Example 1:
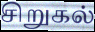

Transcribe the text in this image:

சிறுகல்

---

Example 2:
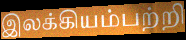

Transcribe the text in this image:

இலக்கியம்பற்றி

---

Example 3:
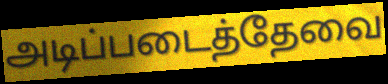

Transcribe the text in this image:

அடிப்படைத்தேவை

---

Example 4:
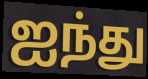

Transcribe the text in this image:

ஐந்து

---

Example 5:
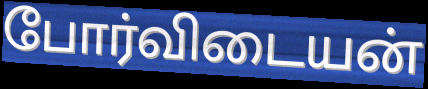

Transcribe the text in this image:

போர்விடையன்